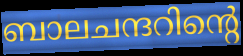
ബാലചന്ദറിന്റെ